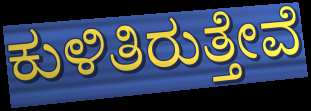
ಕುಳಿತಿರುತ್ತೇವೆ